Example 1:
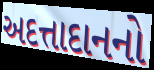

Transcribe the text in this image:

અદત્તાદાનનો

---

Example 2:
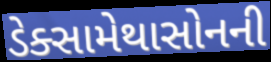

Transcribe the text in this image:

ડેક્સામેથાસોનની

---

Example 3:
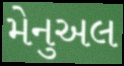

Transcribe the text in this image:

મેનુઅલ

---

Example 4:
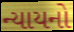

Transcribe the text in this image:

ન્યાયનો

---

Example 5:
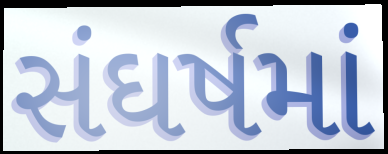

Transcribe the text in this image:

સંઘર્ષમાં